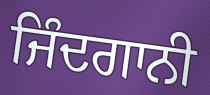
ਜਿੰਦਗਾਨੀ